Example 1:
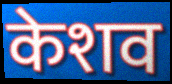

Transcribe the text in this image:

केशव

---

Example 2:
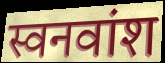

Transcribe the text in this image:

स्वनवांश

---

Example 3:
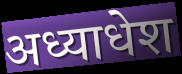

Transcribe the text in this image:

अध्याधेश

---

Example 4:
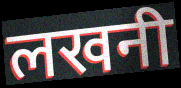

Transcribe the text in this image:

लखनी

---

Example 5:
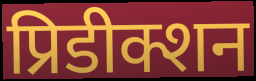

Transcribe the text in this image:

प्रिडीक्शन